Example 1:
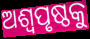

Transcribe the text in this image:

ଅଶ୍ୱପୃଷ୍ଠକୁ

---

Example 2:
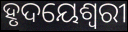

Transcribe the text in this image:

ହୃଦୟେଶ୍ୱରୀ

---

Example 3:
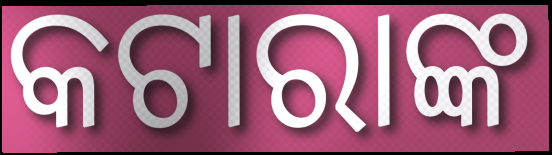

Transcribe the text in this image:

କଟାରାଙ୍କ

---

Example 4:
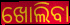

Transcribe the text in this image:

ଖୋଲିବା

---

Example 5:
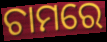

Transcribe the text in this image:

ଚାମରେ